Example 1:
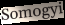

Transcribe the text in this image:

Somogyi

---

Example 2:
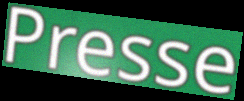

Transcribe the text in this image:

Presse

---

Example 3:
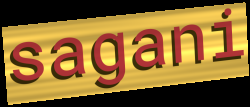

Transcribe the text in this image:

sagani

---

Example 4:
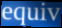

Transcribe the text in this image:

equiv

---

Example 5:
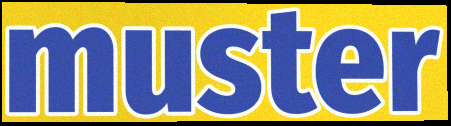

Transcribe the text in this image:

muster